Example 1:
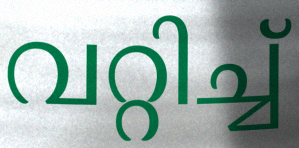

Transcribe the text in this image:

വറ്റിച്ച്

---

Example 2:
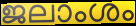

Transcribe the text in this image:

ജലാംശം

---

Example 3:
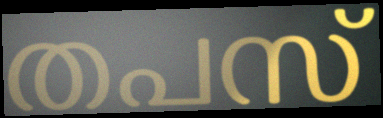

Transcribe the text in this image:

തപസ്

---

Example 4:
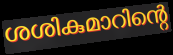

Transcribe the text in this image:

ശശികുമാറിന്റെ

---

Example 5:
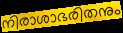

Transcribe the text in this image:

നിരാശാഭരിതനും